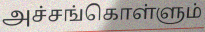
அச்சங்கொள்ளும்